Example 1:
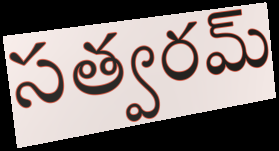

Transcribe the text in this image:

సత్వరమ్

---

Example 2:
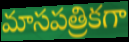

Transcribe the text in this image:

మాసపత్రికగా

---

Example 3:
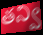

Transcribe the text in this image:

తన్వి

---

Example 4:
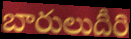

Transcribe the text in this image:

బారులుదీరి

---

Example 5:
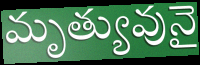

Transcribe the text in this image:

మృత్యువునై